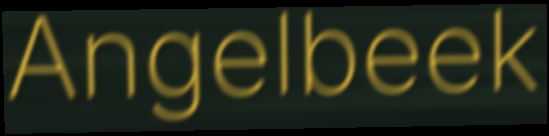
Angelbeek